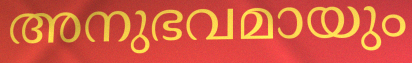
അനുഭവമായും